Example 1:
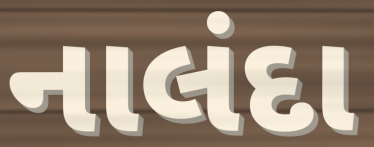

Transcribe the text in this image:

નાલંદા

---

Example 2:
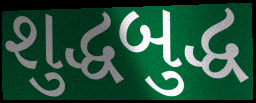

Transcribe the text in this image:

શુદ્ધબુદ્ધ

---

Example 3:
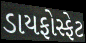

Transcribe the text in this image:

ડાયફોસ્ફેટ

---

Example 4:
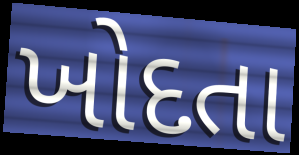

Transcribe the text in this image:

ખોદતા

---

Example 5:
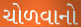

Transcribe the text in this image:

ચોળવાનો